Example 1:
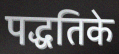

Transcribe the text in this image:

पद्धतिके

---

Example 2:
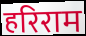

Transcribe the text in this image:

हरिराम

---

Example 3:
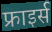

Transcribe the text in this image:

फ्राइर्स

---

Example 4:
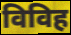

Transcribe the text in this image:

विविह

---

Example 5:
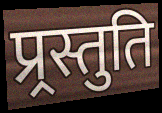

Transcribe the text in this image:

प्र्रस्तुति